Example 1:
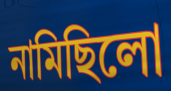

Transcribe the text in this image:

নামিছিলো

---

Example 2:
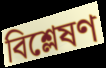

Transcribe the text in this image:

বিশ্লেষণ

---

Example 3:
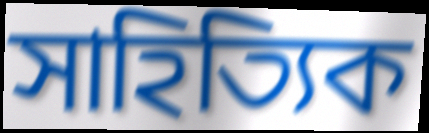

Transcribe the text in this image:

সাহিত্যিক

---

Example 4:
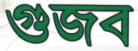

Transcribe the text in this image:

গুজব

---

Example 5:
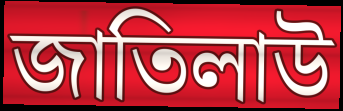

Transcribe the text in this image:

জাতিলাউ